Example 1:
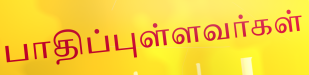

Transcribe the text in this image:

பாதிப்புள்ளவர்கள்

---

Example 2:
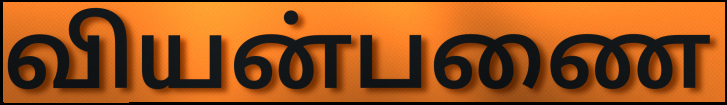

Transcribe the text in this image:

வியன்பணை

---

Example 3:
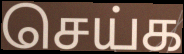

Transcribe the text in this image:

செய்க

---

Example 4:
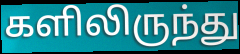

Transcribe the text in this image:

களிலிருந்து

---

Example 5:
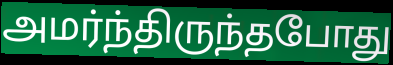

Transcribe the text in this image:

அமர்ந்திருந்தபோது